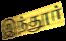
இந்தூர்